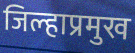
जिल्हाप्रमुख